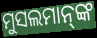
ମୁସଲମାନ୍‍ଙ୍କ